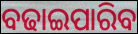
ବଢାଇପାରିବ